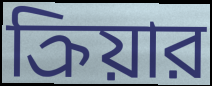
ক্রিয়ার